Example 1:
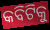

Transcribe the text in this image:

କବିଟିକୁ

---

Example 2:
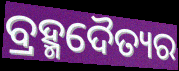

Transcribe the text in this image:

ବ୍ରହ୍ମଦୈତ୍ୟର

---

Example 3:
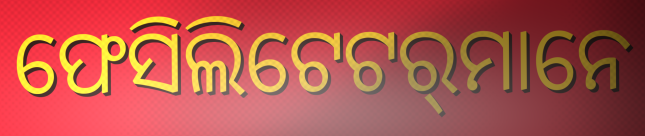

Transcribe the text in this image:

ଫେସିଲିଟେଟର୍‌ମାନେ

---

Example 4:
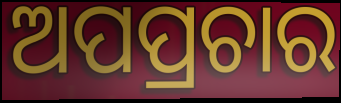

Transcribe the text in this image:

ଅପପ୍ରଚାର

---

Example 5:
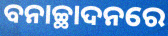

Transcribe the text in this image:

ବନାଚ୍ଛାଦନରେ